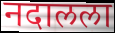
नदालला